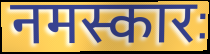
नमस्कारः